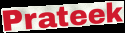
Prateek